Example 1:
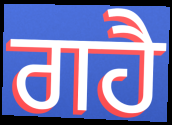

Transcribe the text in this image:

ਗਹੈ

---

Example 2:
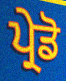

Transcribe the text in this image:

ਪ੍ਰੇਡੋ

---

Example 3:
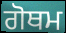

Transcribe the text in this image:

ਗੋਥਮ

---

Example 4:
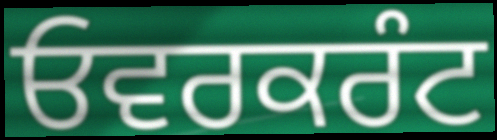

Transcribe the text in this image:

ਓਵਰਕਰੰਟ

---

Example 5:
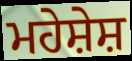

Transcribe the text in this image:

ਮਹੇਸ਼ੇਸ਼